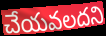
చేయవలదని